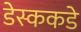
डेस्ककडे